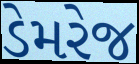
ડેમરેજ